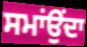
ਸਮਾਂਉਂਦਾ